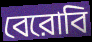
বেরোবি